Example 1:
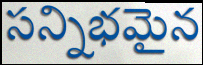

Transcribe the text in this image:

సన్నిభమైన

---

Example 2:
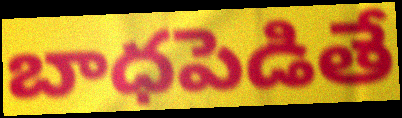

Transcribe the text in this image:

బాధపెడితే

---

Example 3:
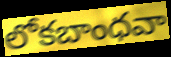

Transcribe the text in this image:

లోకబాంధవా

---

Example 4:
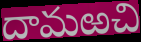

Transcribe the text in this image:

దామఱచి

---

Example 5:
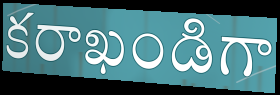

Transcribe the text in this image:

కరాఖండిగా